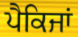
ਪੈਕਿਜਾਂ